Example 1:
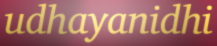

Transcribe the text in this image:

udhayanidhi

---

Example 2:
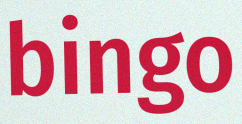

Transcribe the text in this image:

bingo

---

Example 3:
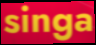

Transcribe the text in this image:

singa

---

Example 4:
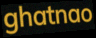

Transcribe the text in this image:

ghatnao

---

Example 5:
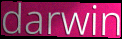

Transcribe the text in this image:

darwin